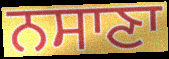
ਨਸਾਣਾ